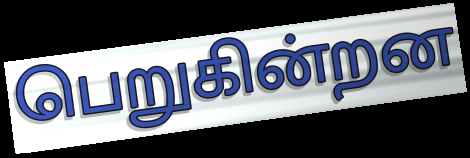
பெறுகின்றன